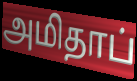
அமிதாப்